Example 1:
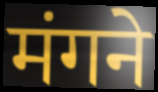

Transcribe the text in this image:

मंगने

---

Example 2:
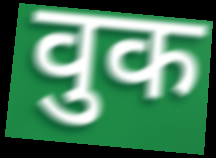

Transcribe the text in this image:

वुक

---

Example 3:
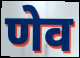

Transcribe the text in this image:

णेव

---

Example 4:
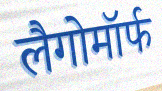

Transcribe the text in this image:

लैगोमॉर्फ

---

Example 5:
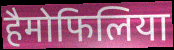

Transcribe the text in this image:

हैमोफिलिया